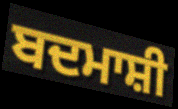
ਬਦਮਾਸ਼ੀ